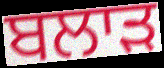
ਬਲਾੜ